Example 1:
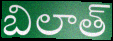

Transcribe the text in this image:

బిలాత్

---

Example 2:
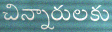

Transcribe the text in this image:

చిన్నారులకు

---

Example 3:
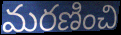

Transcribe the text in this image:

మరణించి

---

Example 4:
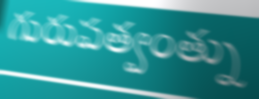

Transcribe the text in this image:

గురుపత్వంత్ను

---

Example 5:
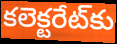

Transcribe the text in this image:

కలెక్టరేట్‌కు